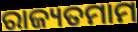
ରାଜ୍ୟତମାମ